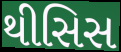
થીસિસ